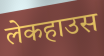
लेकहाउस